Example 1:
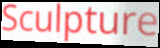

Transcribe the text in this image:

Sculpture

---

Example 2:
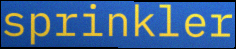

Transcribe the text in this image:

sprinkler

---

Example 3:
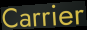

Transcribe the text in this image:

Carrier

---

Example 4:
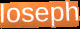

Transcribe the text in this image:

Ioseph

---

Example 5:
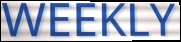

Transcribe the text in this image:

WEEKLY